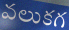
వలుకగ